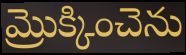
మ్రొక్కించెను